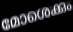
മോശെക്കും